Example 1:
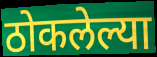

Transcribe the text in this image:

ठोकलेल्या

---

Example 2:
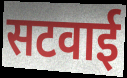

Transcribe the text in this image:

सटवाई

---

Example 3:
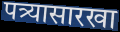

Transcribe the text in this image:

पत्र्यासारखा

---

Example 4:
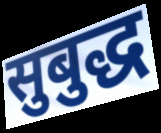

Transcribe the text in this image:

सुबुद्ध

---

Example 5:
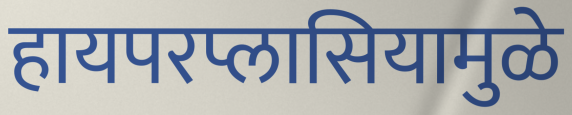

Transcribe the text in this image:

हायपरप्लासियामुळे